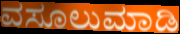
ವಸೂಲುಮಾಡಿ